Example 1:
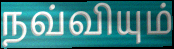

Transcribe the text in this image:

நவ்வியும்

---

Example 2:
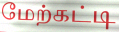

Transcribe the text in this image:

மேற்கட்டி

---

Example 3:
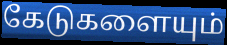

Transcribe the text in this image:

கேடுகளையும்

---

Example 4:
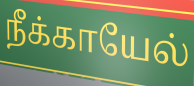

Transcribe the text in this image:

நீக்காயேல்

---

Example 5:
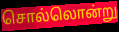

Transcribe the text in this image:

சொல்லொன்று